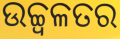
ଉଚ୍ଚ୍ୱଳତର